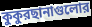
কুকুরছানাগুলোর